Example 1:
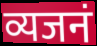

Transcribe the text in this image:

व्यजनं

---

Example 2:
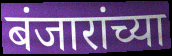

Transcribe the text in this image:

बंजारांच्या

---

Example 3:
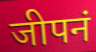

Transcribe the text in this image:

जीपनं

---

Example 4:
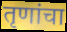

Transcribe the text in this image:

तृणांचा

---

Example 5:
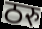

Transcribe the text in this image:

ठरु